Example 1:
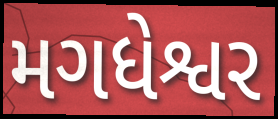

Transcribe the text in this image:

મગધેશ્વર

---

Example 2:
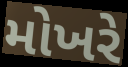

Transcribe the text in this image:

મોખરે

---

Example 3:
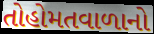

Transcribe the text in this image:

તોહોમતવાળાનો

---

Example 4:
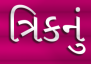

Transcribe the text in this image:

ત્રિકનું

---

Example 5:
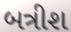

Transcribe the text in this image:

બત્રીશ